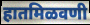
हातमिळवणी